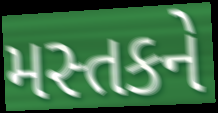
મસ્તકને